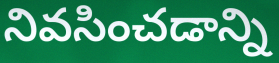
నివసించడాన్ని